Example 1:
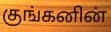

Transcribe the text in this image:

குங்கனின்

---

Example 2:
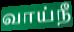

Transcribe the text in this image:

வாய்நீ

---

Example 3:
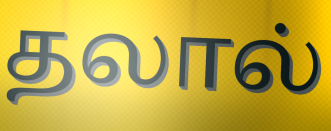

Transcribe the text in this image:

தலால்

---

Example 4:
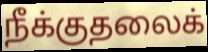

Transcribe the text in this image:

நீக்குதலைக்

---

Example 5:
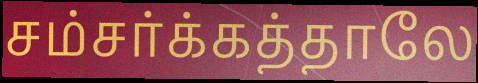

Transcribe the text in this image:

சம்சர்க்கத்தாலே